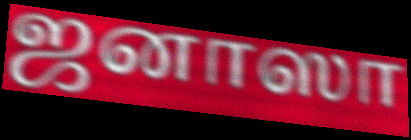
ஜனாஸா